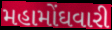
મહામોંઘવારી